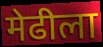
मेढीला